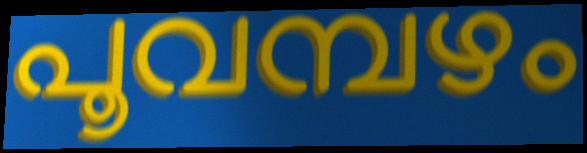
പൂവമ്പഴം